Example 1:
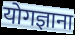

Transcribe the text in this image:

योगज्ञाना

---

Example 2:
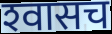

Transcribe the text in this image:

श्‍वासच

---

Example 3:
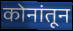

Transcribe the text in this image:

कोनांतून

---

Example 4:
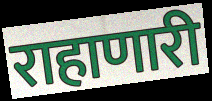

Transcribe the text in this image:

राहाणारी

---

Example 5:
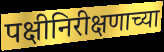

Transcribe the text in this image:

पक्षीनिरीक्षणाच्या